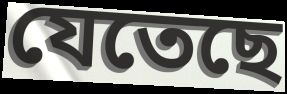
যেতেছে